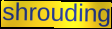
shrouding